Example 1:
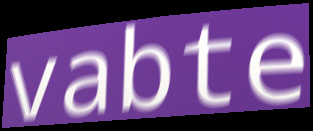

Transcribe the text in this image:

vabte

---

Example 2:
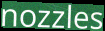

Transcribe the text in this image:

nozzles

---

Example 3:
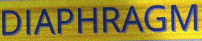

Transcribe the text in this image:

DIAPHRAGM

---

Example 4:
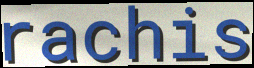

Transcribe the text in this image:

rachis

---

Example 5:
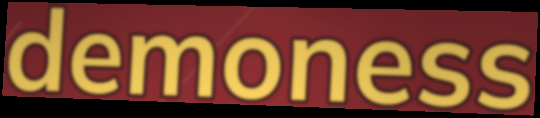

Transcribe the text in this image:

demoness